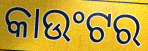
କାଉଂଟର